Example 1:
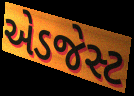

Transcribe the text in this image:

એડજેસ્ટ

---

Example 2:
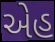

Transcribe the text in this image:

એહ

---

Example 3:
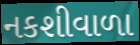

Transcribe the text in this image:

નકશીવાળા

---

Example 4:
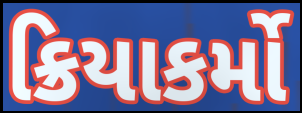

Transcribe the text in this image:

ક્રિયાકર્મો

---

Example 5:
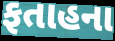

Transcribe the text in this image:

ફતાહના